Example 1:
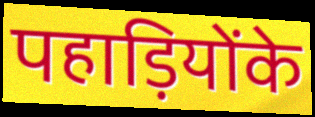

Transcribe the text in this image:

पहाड़ियोंके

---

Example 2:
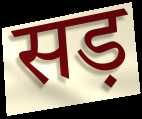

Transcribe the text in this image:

सड़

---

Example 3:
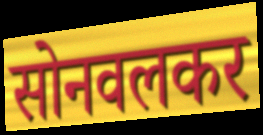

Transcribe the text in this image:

सोनवलकर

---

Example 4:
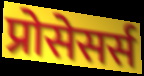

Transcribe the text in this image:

प्रोसेसर्स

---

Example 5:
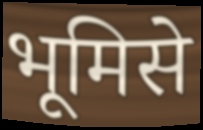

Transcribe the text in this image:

भूमिसे